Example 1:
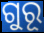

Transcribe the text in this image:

ଗୁରୂ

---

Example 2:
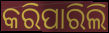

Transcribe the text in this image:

କରିପାରିଲି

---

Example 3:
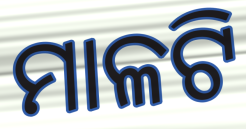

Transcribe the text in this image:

ମାଳଟି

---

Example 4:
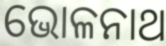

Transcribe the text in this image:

ଭୋଳନାଥ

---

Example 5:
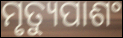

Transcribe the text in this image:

ମୃତ୍ୟୁପାଶଂ